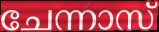
ചേന്നാസ്